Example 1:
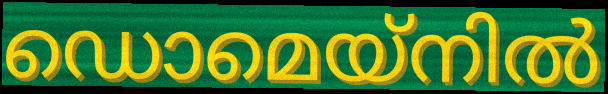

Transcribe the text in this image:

ഡൊമെയ്നിൽ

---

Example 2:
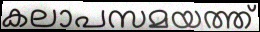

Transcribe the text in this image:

കലാപസമയത്ത്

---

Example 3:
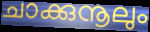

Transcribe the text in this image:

ചാക്കുനൂലും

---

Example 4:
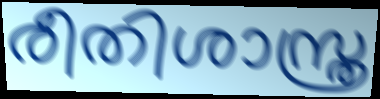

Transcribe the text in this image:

രീതിശാസ്ത്ര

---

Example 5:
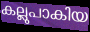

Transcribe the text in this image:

കല്ലുപാകിയ